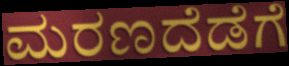
ಮರಣದೆಡೆಗೆ